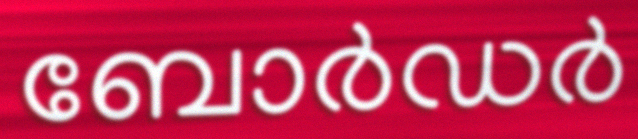
ബോർഡർ